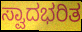
ಸ್ವಾದಭರಿತ